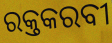
ରକ୍ତକରବୀ